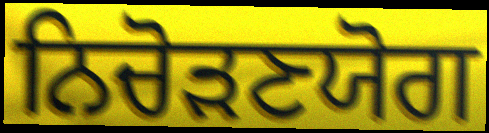
ਨਿਚੋੜਣਯੋਗ